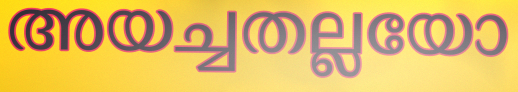
അയച്ചതല്ലയോ